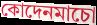
কোদেনমাচো